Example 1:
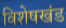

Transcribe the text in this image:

विशेषखंड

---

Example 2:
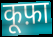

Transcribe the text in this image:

कूफ़ा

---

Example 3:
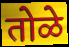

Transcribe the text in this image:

तोळे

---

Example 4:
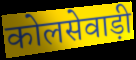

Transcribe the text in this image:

कोलसेवाड़ी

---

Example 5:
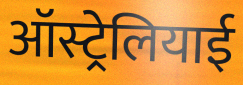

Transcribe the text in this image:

ऑस्‍ट्रेलियाई